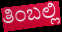
ತಿಂಬಲ್ಲಿ